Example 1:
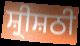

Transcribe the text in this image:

ਸ਼੍ਰੀਸ਼ਠੀ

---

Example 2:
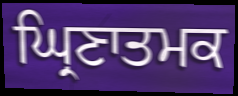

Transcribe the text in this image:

ਘ੍ਰਿਣਾਤਮਕ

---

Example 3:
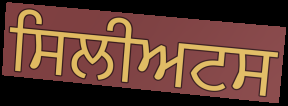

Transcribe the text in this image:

ਸਿਲੀਅਟਸ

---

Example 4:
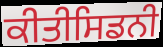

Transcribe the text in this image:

ਕੀਤੀਸਿਡਨੀ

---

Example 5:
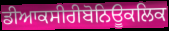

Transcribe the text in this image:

ਡੀਆਕਸੀਰੀਬੋਨਿਊਕਲਿਕ